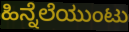
ಹಿನ್ನೆಲೆಯುಂಟು